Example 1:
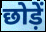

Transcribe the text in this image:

छोड़ें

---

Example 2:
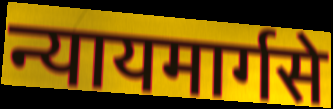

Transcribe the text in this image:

न्यायमार्गसे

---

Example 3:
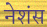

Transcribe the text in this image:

नेशंस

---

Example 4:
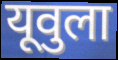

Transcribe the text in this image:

यूवुला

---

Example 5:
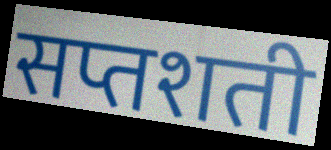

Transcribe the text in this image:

सप्तशती